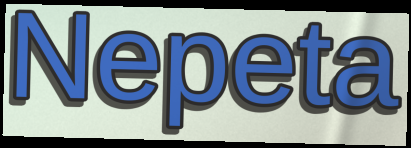
Nepeta